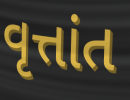
વૃત્તાંત